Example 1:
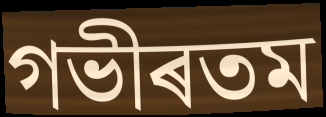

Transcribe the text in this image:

গভীৰতম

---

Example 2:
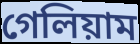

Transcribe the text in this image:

গেলিয়াম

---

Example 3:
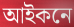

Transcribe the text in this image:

আইকনে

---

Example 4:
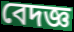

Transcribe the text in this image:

বেদজ্ঞ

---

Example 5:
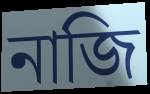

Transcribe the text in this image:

নাজি